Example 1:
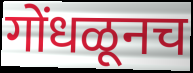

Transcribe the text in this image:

गोंधळूनच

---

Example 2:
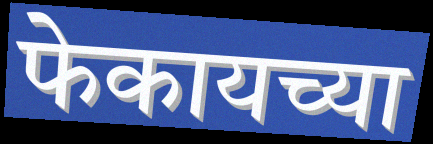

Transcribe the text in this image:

फेकायच्या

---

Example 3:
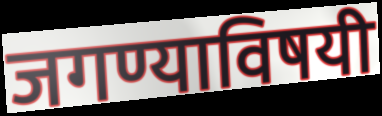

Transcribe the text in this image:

जगण्याविषयी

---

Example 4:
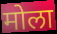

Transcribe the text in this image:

मोला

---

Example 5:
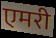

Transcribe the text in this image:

एमरी